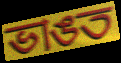
ভাঙত